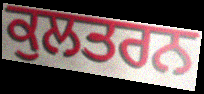
ਕੁਲਤਰਨ